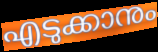
എടുക്കാനും